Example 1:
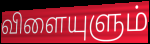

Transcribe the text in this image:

விளையுளும்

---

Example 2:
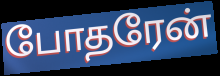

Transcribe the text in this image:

போதரேன்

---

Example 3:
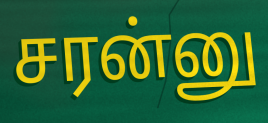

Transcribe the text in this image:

சரன்னு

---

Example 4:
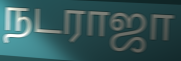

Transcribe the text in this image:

நடராஜா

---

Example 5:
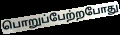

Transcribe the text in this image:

பொறுப்பேற்றபோது